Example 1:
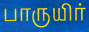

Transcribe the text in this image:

பாருயிர்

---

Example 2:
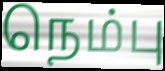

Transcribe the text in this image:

நெம்பு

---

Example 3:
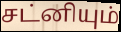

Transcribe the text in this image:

சட்னியும்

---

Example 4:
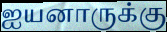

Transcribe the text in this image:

ஐயனாருக்கு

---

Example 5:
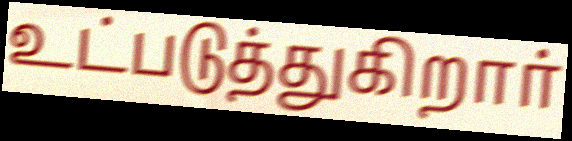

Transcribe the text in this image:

உட்படுத்துகிறார்